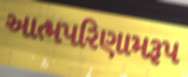
આત્મપરિણામરૂપ